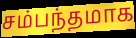
சம்பந்தமாக